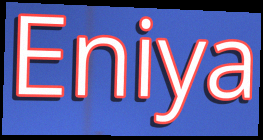
Eniya